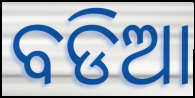
ବଡିଆ